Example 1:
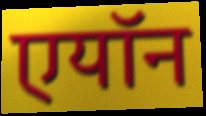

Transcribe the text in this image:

एयॉन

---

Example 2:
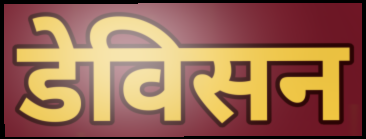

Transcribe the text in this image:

डेविसन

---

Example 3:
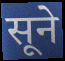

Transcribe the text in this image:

सूने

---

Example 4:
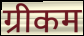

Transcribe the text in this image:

ग्रीकम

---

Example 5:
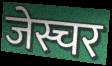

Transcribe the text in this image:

जेस्चर